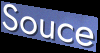
Souce